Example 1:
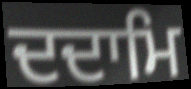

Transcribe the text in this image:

ਦਦਾਮਿ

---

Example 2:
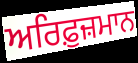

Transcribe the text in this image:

ਅਰਿਫ਼ੁਜ਼ਮਾਨ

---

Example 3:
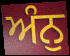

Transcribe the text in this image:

ਅੰਨੁ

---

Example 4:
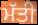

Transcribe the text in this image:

ਮੱਤੀ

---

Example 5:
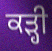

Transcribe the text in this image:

ਕੜ੍ਹੀ